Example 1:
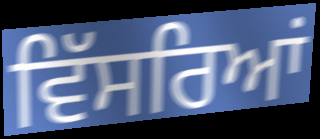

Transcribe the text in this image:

ਵਿੱਸਰਿਆਂ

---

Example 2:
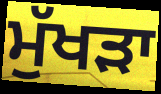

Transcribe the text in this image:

ਮੁੱਖੜਾ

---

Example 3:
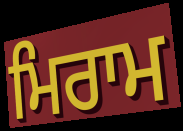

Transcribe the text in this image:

ਮਿਰਾਮ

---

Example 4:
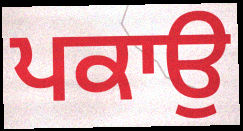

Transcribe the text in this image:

ਪਕਾਉ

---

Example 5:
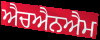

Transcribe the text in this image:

ਐਚਐਨਐਮ